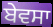
ਬੇਵਸਾ